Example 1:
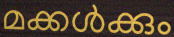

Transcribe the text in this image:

മക്കൾക്കും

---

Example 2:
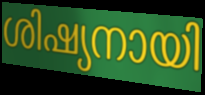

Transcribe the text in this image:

ശിഷ്യനായി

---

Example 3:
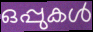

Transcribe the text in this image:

ഒപ്പുകൾ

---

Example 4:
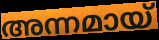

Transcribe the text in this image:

അന്നമായ്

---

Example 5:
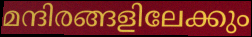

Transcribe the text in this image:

മന്ദിരങ്ങളിലേക്കും